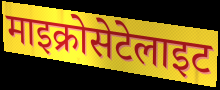
माइक्रोसेटेलाइट